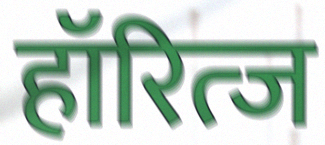
हॉरित्ज